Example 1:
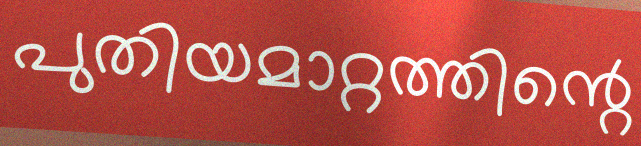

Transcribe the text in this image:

പുതിയമാറ്റത്തിന്റെ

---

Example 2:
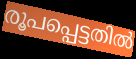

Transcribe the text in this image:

രൂപപ്പെട്ടതിൽ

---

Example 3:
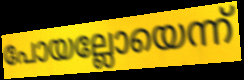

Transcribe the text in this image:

പോയല്ലോയെന്ന്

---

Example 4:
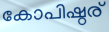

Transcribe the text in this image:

കോപിഷ്ഠര്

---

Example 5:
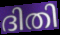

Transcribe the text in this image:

ദിതി